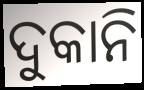
ଦୁକାନି